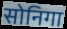
सोनिगा